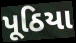
પૂઠિયા